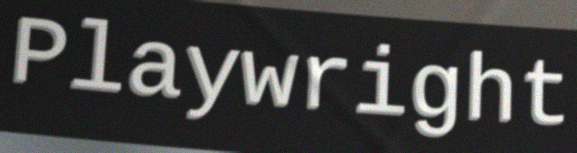
Playwright